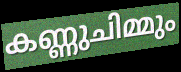
കണ്ണുചിമ്മും